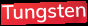
Tungsten